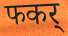
फकर्